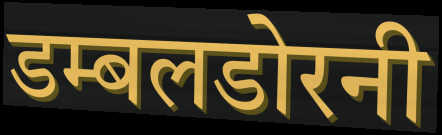
डम्बलडोरनी